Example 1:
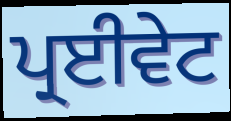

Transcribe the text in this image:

ਪ੍ਰਈਵੇਟ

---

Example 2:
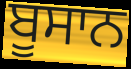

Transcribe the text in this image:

ਬੂਸਾਨ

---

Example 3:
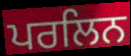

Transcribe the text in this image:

ਪਰਲਿਨ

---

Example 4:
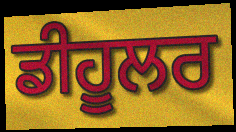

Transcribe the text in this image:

ਡੀਹੂਲਰ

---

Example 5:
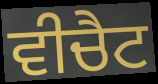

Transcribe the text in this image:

ਵੀਚੈਟ